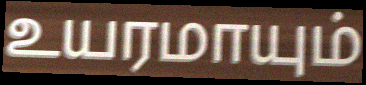
உயரமாயும்